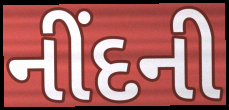
નીંદની